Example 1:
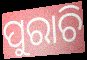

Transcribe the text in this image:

ପୁରାଚି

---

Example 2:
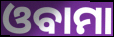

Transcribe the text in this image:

ଓବାମା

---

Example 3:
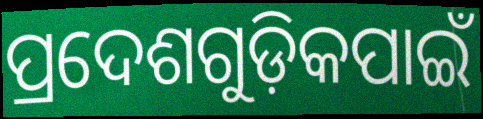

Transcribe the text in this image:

ପ୍ରଦେଶଗୁଡ଼ିକପାଇଁ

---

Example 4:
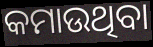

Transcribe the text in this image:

କମାଉଥିବା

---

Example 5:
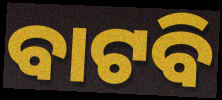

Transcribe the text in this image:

ବାଟବି